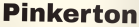
Pinkerton